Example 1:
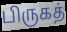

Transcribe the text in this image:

பிருகத்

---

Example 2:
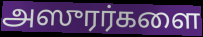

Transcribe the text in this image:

அஸுரர்களை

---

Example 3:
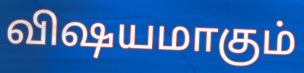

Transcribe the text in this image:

விஷயமாகும்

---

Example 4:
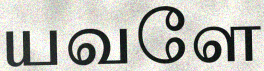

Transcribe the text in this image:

யவளே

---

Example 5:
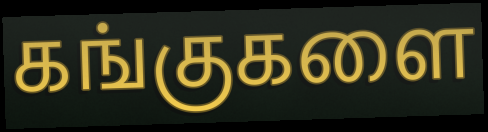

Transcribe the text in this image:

கங்குகளை